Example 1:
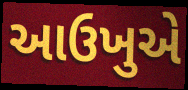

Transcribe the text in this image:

આઉખુએ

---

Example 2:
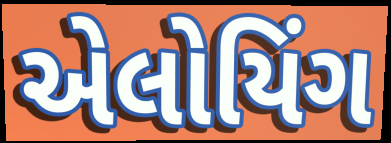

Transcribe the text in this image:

એલોયિંગ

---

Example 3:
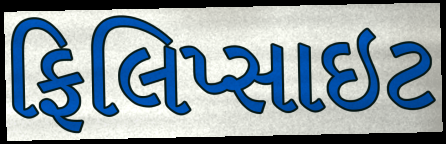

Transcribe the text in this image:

ફિલિપ્સાઇટ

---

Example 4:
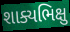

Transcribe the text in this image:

શાક્યભિક્ષુ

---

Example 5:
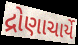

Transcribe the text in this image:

દ્રોણાચાર્યે